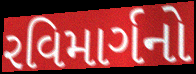
રવિમાર્ગનો